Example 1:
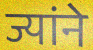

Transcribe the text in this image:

ज्यांने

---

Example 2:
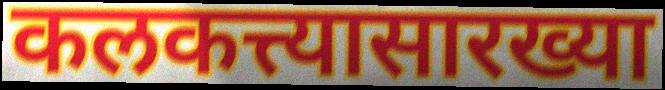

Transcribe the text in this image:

कलकत्त्यासारख्या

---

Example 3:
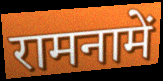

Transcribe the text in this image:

रामनामें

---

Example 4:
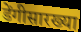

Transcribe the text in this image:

डेंगीसारख्या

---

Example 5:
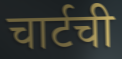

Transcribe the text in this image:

चार्टची